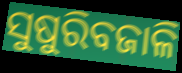
ସୁଷୁରିବଜାଳି